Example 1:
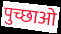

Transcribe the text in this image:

पुच्छाओ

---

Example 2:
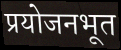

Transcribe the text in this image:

प्रयोजनभूत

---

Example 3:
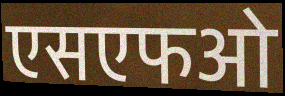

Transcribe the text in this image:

एसएफओ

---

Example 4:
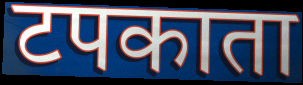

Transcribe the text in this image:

टपकाता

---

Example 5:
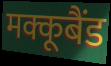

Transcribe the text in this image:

मक्कूबैंड